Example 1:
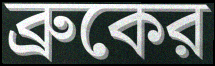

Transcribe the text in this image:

ব্রুকের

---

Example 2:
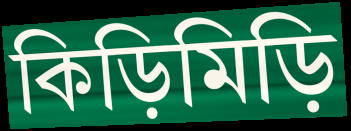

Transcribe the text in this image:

কিড়িমিড়ি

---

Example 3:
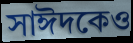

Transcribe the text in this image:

সাঈদকেও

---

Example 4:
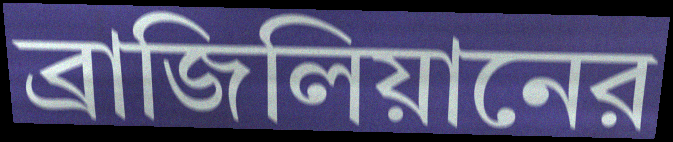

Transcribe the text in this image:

ব্রাজিলিয়ানের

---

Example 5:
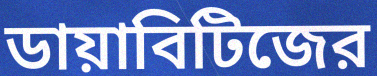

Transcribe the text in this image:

ডায়াবিটিজের